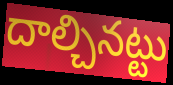
దాల్చినట్టు